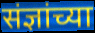
संज्ञांच्या